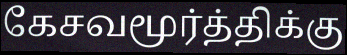
கேசவமூர்த்திக்கு